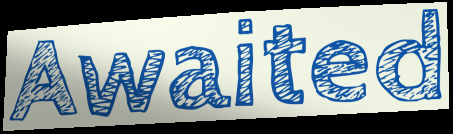
Awaited